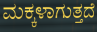
ಮಕ್ಕಳಾಗುತ್ತದೆ